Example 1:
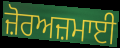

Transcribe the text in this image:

ਜ਼ੋਰਅਜ਼ਮਾਈ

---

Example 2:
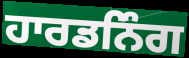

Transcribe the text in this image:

ਹਾਰਡਨਿੰਗ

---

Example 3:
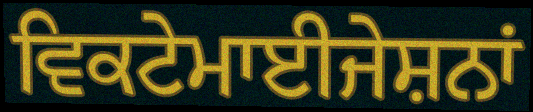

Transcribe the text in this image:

ਵਿਕਟੇਮਾਈਜੇਸ਼ਨਾਂ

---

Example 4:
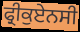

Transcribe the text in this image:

ਫ੍ਰੀਕੁਏਨਸੀ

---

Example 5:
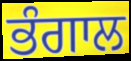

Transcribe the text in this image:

ਭੰਗਾਲ